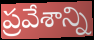
ప్రవేశాన్ని